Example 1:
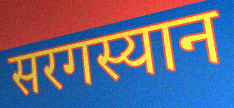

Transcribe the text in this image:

सरगस्यान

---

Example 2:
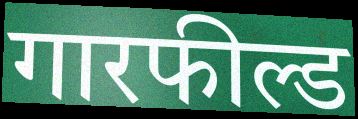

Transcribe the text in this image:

गारफील्ड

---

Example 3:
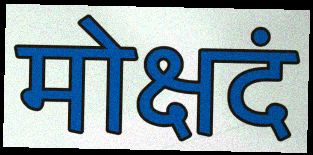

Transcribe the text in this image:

मोक्षदं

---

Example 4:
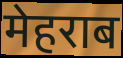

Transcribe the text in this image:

मेहराब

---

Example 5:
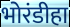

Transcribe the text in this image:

भोरंडीहा